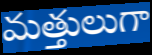
మత్తులుగా